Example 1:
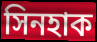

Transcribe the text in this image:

সিনহাক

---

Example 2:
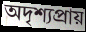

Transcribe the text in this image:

অদৃশ্যপ্ৰায়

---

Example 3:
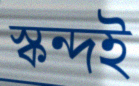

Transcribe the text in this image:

স্কন্দই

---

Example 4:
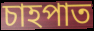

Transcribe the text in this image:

চাহপাত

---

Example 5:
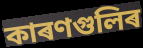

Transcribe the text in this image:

কাৰণগুলিৰ